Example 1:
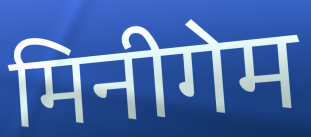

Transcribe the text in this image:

मिनीगेम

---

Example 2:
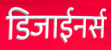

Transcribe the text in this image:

डिजाईनर्स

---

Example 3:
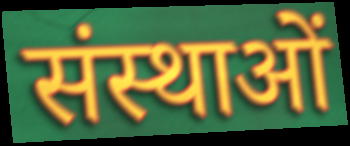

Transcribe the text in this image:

संस्थाओं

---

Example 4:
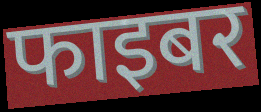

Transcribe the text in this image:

फाइबर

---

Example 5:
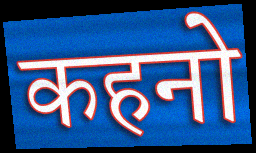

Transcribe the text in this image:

कहनो